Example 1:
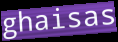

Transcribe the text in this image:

ghaisas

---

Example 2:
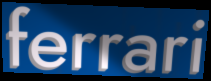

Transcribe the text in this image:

ferrari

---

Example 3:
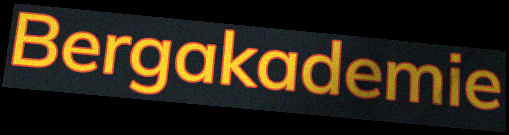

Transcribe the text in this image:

Bergakademie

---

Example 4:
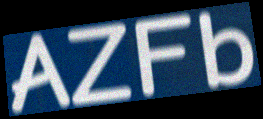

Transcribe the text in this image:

AZFb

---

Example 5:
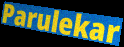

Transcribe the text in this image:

Parulekar